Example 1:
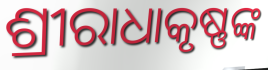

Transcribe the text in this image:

ଶ୍ରୀରାଧାକୃଷ୍ଣଙ୍କ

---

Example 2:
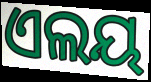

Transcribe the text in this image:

ଏଲୟ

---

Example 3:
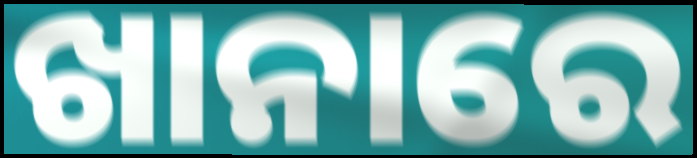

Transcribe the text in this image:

ଖାନାରେ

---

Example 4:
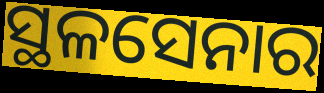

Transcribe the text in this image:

ସ୍ଥଳସେନାର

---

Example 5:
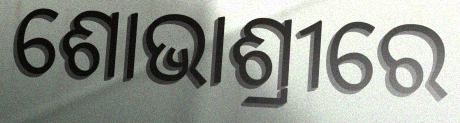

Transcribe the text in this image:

ଶୋଭାଶ୍ରୀରେ